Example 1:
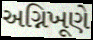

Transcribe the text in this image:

અગ્નિખૂણે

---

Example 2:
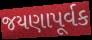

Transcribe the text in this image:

જયણાપૂર્વક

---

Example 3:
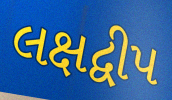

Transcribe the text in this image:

લક્ષદ્વીપ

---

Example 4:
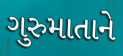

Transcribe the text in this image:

ગુરુમાતાને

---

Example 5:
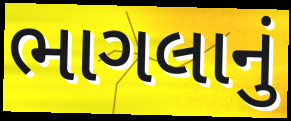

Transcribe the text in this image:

ભાગલાનું